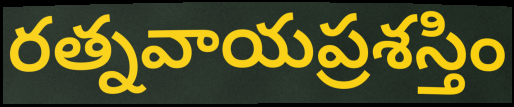
రత్నవాయప్రశస్తిం